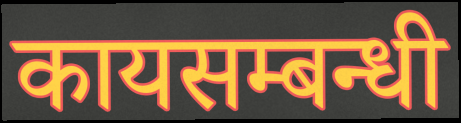
कायसम्बन्धी